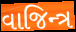
વાજિન્ત્ર